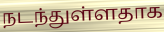
நடந்துள்ளதாக